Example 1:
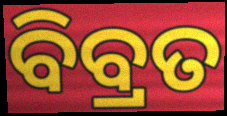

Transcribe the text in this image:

ବିବ୍ରତ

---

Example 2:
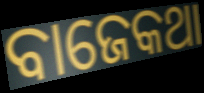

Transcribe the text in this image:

ବାଜେକଥା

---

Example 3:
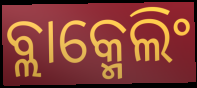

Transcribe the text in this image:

ବ୍ଲାକ୍ମେଲିଂ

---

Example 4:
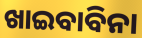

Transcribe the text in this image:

ଖାଇବାବିନା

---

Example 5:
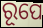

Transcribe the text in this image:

ରୂପେ